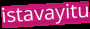
istavayitu